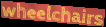
wheelchairs